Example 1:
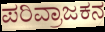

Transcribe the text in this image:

ಪರಿವ್ರಾಜಕನ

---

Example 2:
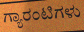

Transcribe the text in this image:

ಗ್ಯಾರಂಟಿಗಳು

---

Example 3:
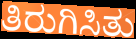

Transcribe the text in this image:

ತಿರುಗಿಸಿತು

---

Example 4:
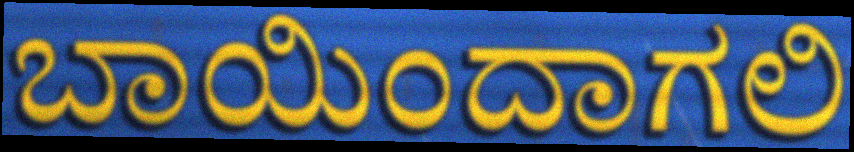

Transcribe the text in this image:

ಬಾಯಿಂದಾಗಲಿ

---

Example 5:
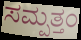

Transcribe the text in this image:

ಸಮ್ಪತ್ತಂ